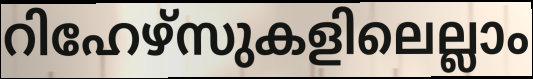
റിഹേഴ്സുകളിലെല്ലാം